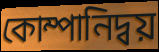
কোম্পানিদ্বয়